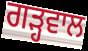
ਗੜ੍ਹਵਾਲ